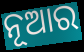
ନୂଆର